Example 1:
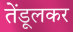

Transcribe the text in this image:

तेंडूलकर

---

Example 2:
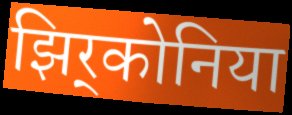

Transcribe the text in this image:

झिर्कोनिया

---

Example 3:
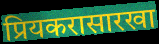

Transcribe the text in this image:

प्रियकरासारखा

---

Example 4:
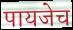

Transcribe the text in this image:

पायजेच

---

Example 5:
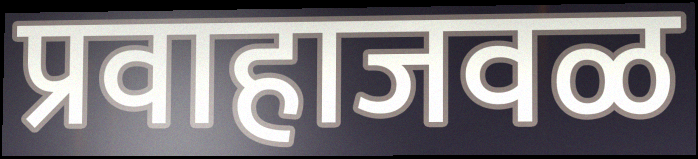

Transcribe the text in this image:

प्रवाहाजवळ